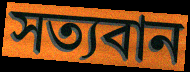
সত্যবান